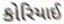
કોરિયાઈ